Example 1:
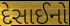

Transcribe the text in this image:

દેસાઈનો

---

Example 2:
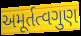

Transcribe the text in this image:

અમૂર્તત્વગુણ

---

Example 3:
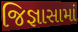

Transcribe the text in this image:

જિજ્ઞાસામાં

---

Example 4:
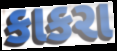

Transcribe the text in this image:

કાકરા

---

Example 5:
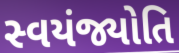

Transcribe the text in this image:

સ્વયંજ્યોતિ